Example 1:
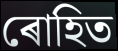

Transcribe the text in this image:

ৰোহিত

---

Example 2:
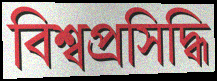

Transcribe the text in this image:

বিশ্বপ্ৰসিদ্ধি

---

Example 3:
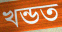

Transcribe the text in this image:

খন্ডত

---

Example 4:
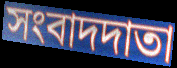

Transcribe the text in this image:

সংবাদদাতা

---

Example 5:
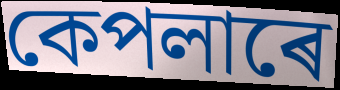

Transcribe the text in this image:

কেপলাৰে